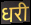
धरी